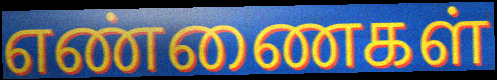
எண்ணைகள்